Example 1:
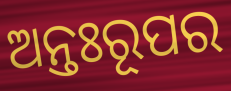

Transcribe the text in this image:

ଅନ୍ତଃରୂପର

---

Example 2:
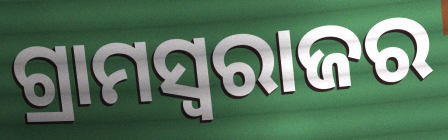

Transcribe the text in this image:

ଗ୍ରାମସ୍ୱରାଜର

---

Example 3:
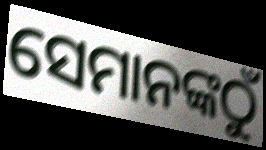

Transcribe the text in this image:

ସେମାନଙ୍କଠୁଁ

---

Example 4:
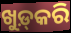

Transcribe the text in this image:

ଖୁଡ଼୍‍କରି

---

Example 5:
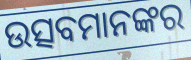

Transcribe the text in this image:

ଉତ୍ସବମାନଙ୍କର